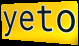
yeto